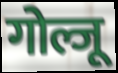
गोल्जू